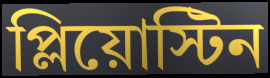
প্লিয়োস্টিন